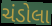
ચંડોલા